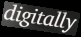
digitally